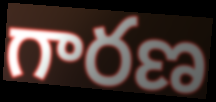
గారణ